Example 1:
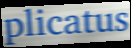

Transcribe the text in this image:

plicatus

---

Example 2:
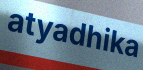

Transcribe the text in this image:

atyadhika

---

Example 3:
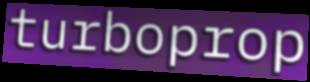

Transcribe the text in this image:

turboprop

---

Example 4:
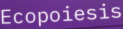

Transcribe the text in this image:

Ecopoiesis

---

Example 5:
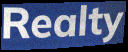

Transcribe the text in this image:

Realty